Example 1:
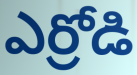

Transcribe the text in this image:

ఎర్రోడి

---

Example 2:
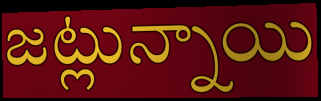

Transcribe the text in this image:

జట్లున్నాయి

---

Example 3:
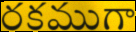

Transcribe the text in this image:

రకముగా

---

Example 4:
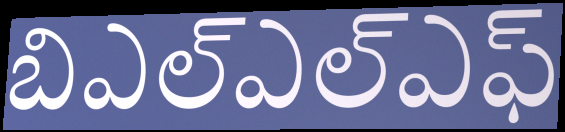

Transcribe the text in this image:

బిఎల్ఎల్ఎఫ్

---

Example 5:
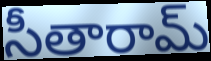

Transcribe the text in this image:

సీతారామ్